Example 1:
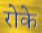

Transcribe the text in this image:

रोके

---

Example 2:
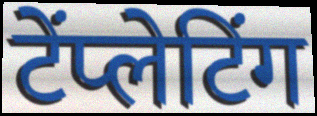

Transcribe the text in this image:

टेंप्लेटिंग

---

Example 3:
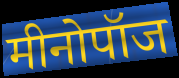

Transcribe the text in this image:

मीनोपॉज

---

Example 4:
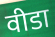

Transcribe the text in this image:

वीडा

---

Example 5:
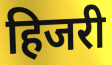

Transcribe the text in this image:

हिजरी